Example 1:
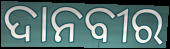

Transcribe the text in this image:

ଦାନବୀର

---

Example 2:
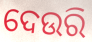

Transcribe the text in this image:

ଦେଉରି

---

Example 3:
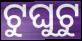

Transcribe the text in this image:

ଟୁଘୁଟୁ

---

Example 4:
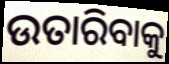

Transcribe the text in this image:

ଉତାରିବାକୁ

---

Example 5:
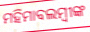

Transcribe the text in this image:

ମହିମାବଲମ୍ବୀଙ୍କ